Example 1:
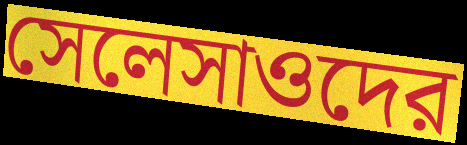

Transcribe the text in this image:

সেলেসাওদের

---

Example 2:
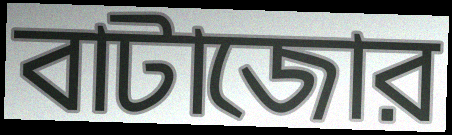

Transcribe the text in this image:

বাটাজোর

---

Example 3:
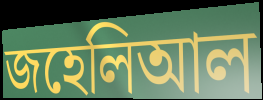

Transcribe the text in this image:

জহেলিআল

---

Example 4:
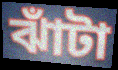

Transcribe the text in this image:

ঝাঁটা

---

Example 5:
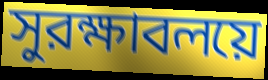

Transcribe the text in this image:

সুরক্ষাবলয়ে